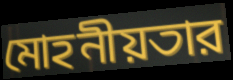
মোহনীয়তার